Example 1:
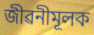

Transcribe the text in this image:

জীৱনীমূলক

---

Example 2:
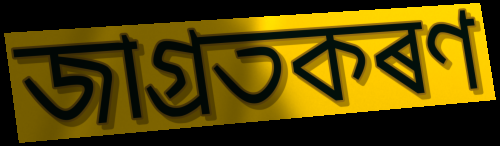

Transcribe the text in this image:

জাগ্ৰতকৰণ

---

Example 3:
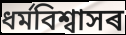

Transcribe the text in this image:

ধৰ্মবিশ্বাসৰ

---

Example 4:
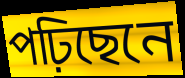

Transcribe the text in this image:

পঢ়িছেনে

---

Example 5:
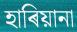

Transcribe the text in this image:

হাৰিয়ানা